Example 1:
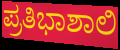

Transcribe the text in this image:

ಪ್ರತಿಭಾಶಾಲಿ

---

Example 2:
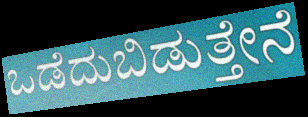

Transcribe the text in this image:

ಒಡೆದುಬಿಡುತ್ತೇನೆ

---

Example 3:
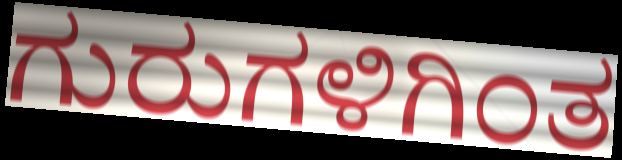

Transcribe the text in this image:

ಗುರುಗಳಿಗಿಂತ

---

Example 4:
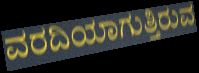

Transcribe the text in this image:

ವರದಿಯಾಗುತ್ತಿರುವ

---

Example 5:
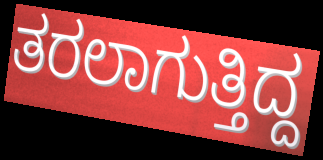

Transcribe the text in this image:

ತರಲಾಗುತ್ತಿದ್ದ